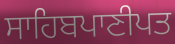
ਸਾਹਿਬਪਾਣੀਪਤ